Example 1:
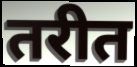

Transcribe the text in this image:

तरीत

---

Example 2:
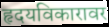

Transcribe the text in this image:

हृदयविकारावर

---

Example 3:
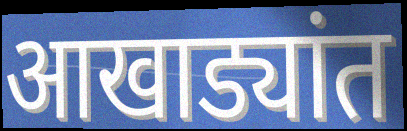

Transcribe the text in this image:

आखाड्यांत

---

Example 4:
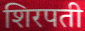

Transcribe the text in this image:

शिरपती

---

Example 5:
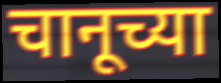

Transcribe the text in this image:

चानूच्या